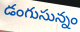
డంగుసున్నం